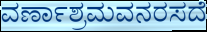
ವರ್ಣಾಶ್ರಮವನರಸದೆ